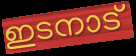
ഇടനാട്